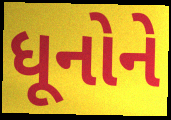
ધૂનોને